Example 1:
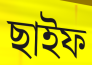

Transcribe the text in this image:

ছাইফ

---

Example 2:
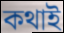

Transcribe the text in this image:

কথাই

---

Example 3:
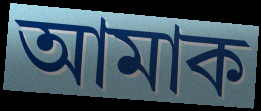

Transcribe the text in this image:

আমাক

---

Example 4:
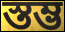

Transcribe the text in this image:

স্তম্ভ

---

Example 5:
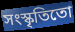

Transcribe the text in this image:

সংস্কৃতিতো